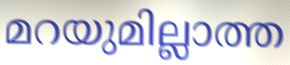
മറയുമില്ലാത്ത